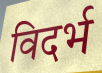
विदर्भ